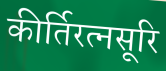
कीर्तिरत्नसूरि